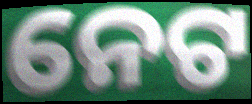
ନେଟ